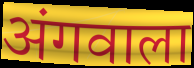
अंगवाला